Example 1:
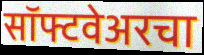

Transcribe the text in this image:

सॉफ्टवेअरचा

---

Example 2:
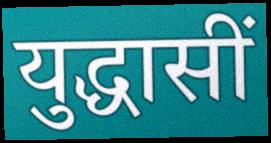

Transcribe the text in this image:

युद्धासीं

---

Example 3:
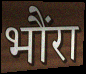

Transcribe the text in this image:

भौंरा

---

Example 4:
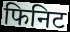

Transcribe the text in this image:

फिनिट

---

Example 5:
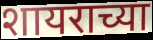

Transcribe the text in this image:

शायराच्या